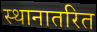
स्थानातरित